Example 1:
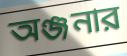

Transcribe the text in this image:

অঞ্জনার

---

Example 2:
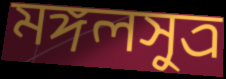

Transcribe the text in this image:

মঙ্গলসুত্র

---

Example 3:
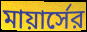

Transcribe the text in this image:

মায়ার্সের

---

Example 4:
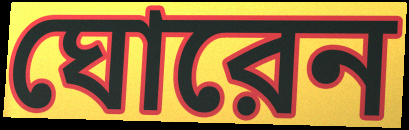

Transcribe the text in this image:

ঘোরেন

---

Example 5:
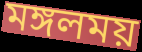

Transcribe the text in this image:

মঙ্গলময়